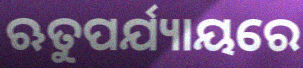
ଋତୁପର୍ଯ୍ୟାୟରେ